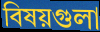
বিষয়গুলা